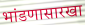
भांडणासारखा